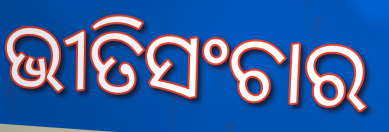
ଭୀତିସଂଚାର